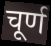
चूर्ण